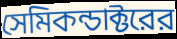
সেমিকন্ডাক্টরের